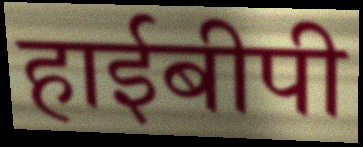
हाईबीपी